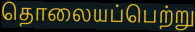
தொலையப்பெற்று